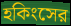
হকিংসের